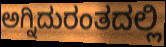
ಅಗ್ನಿದುರಂತದಲ್ಲಿ